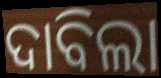
ଦାବିଲା